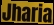
Jharia